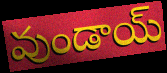
వుండాయ్